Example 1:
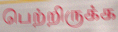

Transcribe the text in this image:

பெற்றிருக்க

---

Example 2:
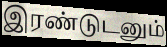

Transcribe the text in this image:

இரண்டுடனும்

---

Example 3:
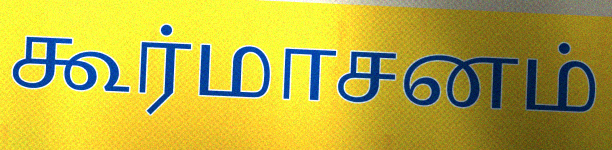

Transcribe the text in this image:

கூர்மாசனம்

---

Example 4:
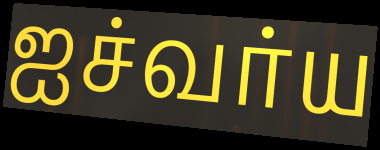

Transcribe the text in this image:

ஐச்வர்ய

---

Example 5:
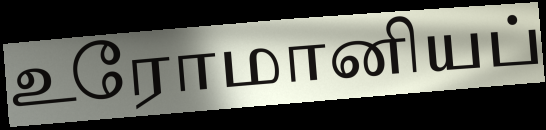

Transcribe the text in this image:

உரோமானியப்